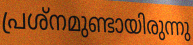
പ്രശ്നമുണ്ടായിരുന്നു